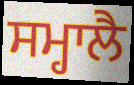
ਸਮ੍ਹ੍ਹਾਲੈ